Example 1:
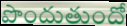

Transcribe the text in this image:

పొందుతుందో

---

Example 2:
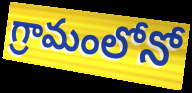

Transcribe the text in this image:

గ్రామంలోనో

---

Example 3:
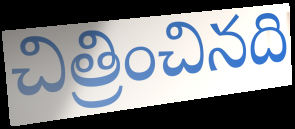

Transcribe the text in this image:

చిత్రించినది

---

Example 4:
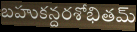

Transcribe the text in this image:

బహుకన్దరశోభితమ్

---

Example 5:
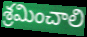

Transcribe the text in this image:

శ్రమించాలి